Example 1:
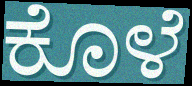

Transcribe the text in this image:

ಕೊಳೆ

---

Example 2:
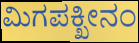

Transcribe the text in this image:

ಮಿಗಪಕ್ಖೀನಂ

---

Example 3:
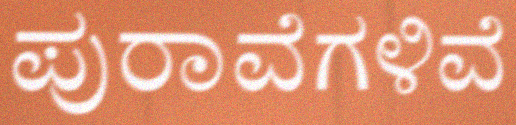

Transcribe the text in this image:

ಪುರಾವೆಗಳಿವೆ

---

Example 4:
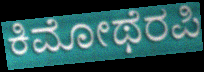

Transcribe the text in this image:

ಕಿಮೋಥೆರಪಿ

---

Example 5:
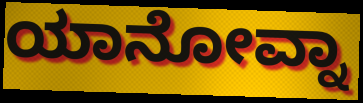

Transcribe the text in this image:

ಯಾನೋವ್ನಾ